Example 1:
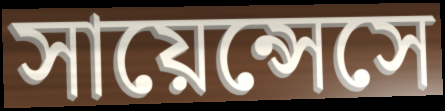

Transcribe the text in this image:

সায়েন্সেসে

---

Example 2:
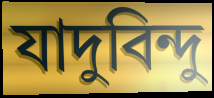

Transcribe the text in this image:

যাদুবিন্দু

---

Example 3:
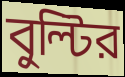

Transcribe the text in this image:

বুল্টির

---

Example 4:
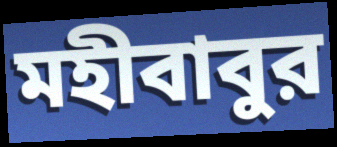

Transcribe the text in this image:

মহীবাবুর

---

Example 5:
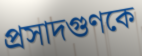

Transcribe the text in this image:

প্রসাদগুণকে